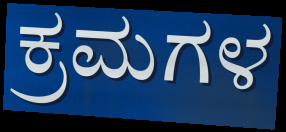
ಕ್ರಮಗಳ